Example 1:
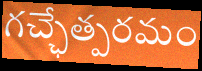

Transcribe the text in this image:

గచ్ఛేత్పరమం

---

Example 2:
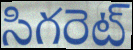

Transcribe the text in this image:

సిగరెట్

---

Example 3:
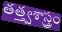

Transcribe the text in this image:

తత్త్వశాస్త్రం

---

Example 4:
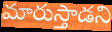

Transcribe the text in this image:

మారుస్తాడని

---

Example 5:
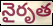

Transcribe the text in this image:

నైరృత